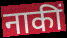
नाकीं